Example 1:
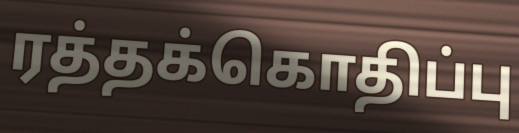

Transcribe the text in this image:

ரத்தக்கொதிப்பு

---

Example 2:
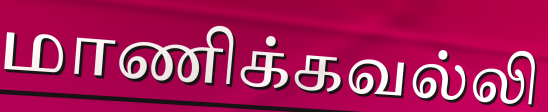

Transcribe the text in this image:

மாணிக்கவல்லி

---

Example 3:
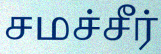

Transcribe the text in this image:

சமச்சீர்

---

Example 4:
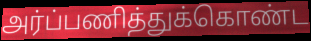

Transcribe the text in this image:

அர்ப்பணித்துக்கொண்ட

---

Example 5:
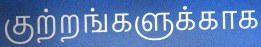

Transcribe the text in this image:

குற்றங்களுக்காக